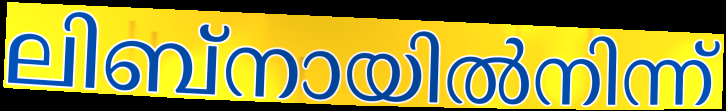
ലിബ്നായിൽനിന്ന്